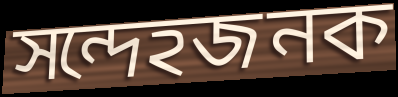
সন্দেহজনক